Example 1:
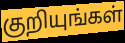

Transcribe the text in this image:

குறியுங்கள்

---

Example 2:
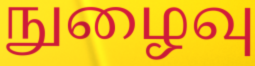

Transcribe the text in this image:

நுழைவு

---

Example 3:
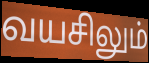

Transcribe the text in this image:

வயசிலும்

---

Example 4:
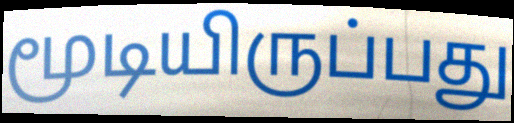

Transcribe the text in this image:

மூடியிருப்பது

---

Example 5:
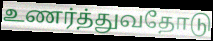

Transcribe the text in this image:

உணர்த்துவதோடு